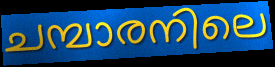
ചമ്പാരനിലെ